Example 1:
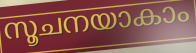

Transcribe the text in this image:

സൂചനയാകാം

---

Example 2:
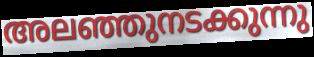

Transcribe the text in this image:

അലഞ്ഞുനടക്കുന്നു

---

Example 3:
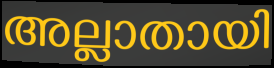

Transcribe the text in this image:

അല്ലാതായി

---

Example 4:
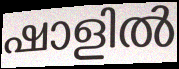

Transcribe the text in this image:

ഷാളിൽ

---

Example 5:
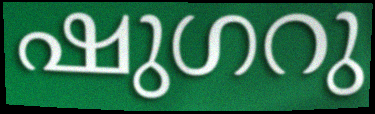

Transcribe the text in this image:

ഷുഗറു